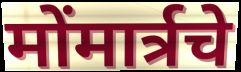
मोंमार्त्रचे